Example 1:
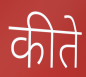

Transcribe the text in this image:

कीते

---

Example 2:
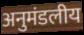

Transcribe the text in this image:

अनुमंडलीय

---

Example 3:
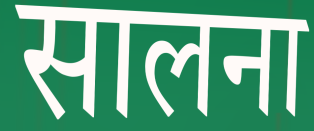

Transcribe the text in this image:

सालना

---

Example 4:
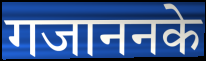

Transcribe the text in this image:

गजाननके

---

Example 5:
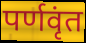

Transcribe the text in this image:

पर्णवृंत